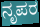
ನೃಪರ